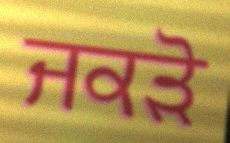
ਜਕੜੋ